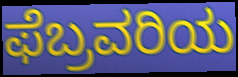
ಫೆಬ್ರವರಿಯ